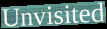
Unvisited